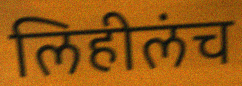
लिहीलंच